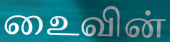
உைவின்